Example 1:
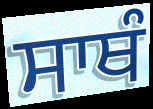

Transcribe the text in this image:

ਸਾਥੰ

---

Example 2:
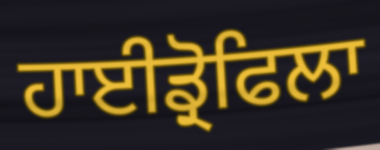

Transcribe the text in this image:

ਹਾਈਡ੍ਰੋਫਿਲਾ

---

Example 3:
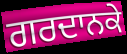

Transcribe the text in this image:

ਗਰਦਾਨਕੇ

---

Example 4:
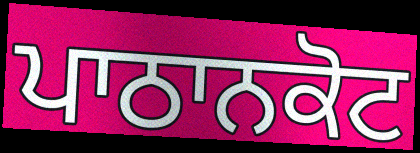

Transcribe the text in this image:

ਪਾਠਾਨਕੋਟ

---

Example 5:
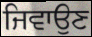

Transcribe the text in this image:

ਜਿਵਾਉਣ